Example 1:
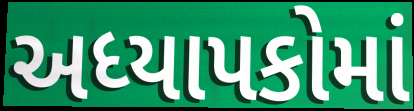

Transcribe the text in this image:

અધ્યાપકોમાં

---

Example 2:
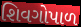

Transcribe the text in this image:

શિવગોપાળ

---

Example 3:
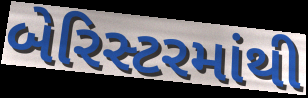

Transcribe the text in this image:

બેરિસ્ટરમાંથી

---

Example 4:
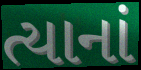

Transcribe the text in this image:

ત્યાનાં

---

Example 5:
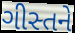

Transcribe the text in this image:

ગીસ્તને